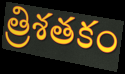
త్రిశతకం